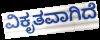
ವಿಕೃತವಾಗಿದೆ